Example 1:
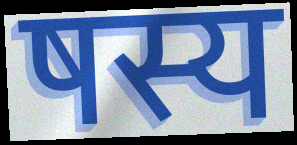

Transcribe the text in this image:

षस्य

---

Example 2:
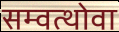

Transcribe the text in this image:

सम्वत्थोवा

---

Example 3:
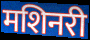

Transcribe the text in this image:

मशिनरी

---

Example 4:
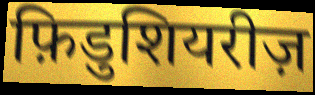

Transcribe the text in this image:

फ़िडुशियरीज़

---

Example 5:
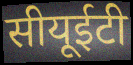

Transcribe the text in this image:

सीयूईटी